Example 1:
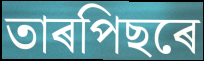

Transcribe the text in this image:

তাৰপিছৰে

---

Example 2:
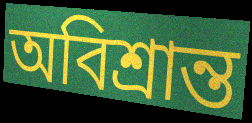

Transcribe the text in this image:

অবিশ্ৰান্ত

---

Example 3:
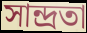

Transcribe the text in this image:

সান্দ্ৰতা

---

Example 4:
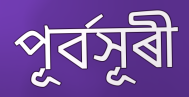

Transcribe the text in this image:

পূৰ্বসূৰী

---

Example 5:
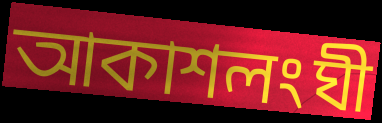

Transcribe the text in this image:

আকাশলংঘী